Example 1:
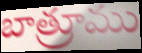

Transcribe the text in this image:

బాత్రూము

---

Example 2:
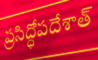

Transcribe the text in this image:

ప్రసిద్ధోపదేశాత్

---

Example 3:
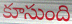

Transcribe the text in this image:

కూసుంది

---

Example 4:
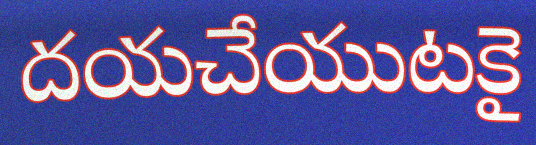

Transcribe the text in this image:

దయచేయుటకై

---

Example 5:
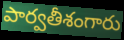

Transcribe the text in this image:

పార్వతీశంగారు